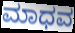
ಮಾಧವ